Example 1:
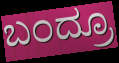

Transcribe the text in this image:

ಬಂದ್ರೂ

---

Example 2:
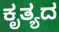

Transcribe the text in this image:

ಕೃತ್ಯದ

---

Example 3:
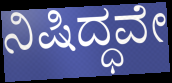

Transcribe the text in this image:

ನಿಷಿದ್ಧವೇ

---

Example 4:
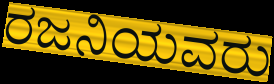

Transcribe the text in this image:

ರಜನಿಯವರು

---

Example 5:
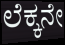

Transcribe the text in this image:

ಲೆಕ್ಕನೇ